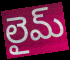
లైమ్